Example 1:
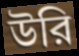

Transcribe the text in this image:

উরি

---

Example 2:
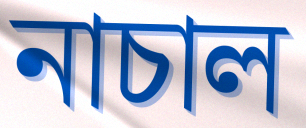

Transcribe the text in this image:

নাচাল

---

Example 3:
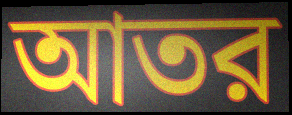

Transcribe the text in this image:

আতর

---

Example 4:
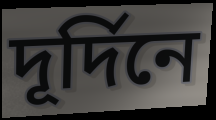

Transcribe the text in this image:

দূর্দিনে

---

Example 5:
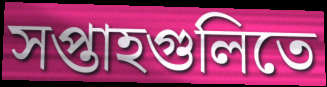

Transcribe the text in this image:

সপ্তাহগুলিতে